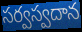
సర్వస్వదాన